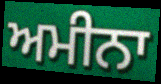
ਅਮੀਨਾ